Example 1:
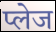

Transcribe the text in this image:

प्‍लेज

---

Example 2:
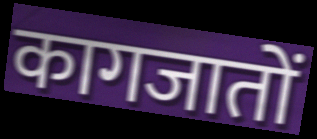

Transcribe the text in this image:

कागजातों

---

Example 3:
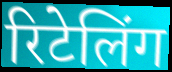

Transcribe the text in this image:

रिटेलिंग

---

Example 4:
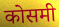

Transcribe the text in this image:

कोसमी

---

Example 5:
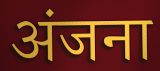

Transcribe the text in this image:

अंजना